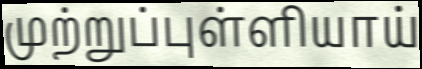
முற்றுப்புள்ளியாய்